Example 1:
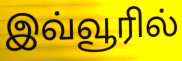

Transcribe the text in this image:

இவ்வூரில்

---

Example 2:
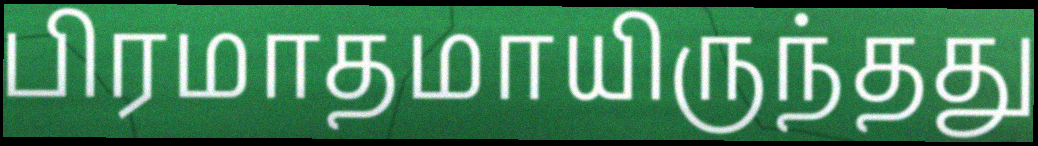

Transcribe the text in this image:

பிரமாதமாயிருந்தது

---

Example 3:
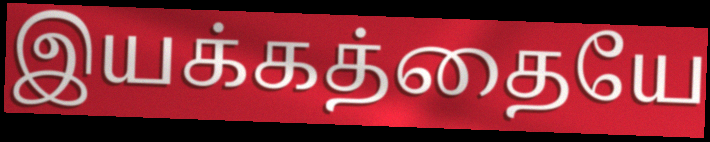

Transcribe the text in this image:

இயக்கத்தையே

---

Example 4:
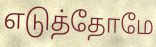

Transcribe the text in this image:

எடுத்தோமே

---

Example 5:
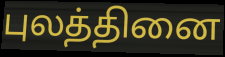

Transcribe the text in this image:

புலத்தினை